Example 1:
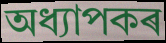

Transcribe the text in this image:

অধ্যাপকৰ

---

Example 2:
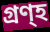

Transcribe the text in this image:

গ্ৰণ্হ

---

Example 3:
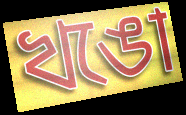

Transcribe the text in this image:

খঙো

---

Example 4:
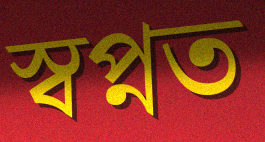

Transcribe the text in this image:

স্বপ্নত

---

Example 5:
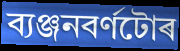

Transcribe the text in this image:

ব্যঞ্জনবৰ্ণটোৰ